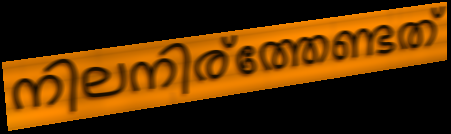
നിലനിര്ത്തേണ്ടത്